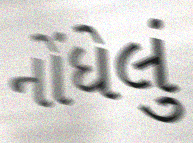
નોંધેલું